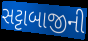
સટ્ટાબાજીની